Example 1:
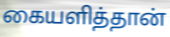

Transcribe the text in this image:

கையளித்தான்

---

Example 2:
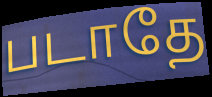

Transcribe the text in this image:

படாதே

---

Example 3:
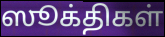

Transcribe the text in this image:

ஸூக்திகள்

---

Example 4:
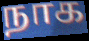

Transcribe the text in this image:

நாக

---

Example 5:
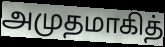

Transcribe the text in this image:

அமுதமாகித்